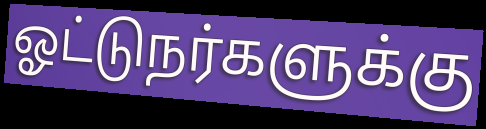
ஓட்டுநர்களுக்கு